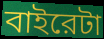
বাইরেটা